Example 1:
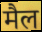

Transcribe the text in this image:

मैल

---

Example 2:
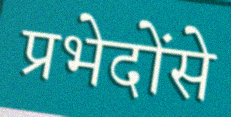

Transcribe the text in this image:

प्रभेदोंसे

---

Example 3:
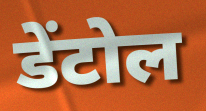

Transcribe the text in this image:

डेंटोल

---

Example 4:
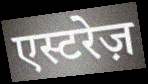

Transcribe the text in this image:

एस्टरेज़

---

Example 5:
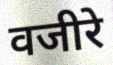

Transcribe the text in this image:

वजीरे